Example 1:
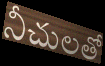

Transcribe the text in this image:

నీచులతో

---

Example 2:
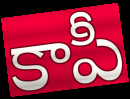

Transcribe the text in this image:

కాపీ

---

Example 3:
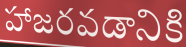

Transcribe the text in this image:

హాజరవడానికి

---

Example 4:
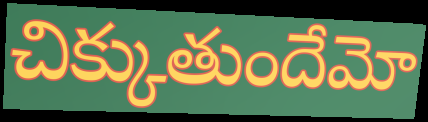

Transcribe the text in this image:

చిక్కుతుందేమో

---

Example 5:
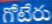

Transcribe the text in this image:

గోటేరు